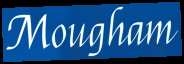
Mougham